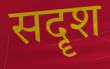
सदॄश